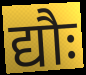
द्यौः